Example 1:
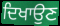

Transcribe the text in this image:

ਦਿਖਾਉਣ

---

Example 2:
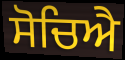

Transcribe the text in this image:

ਸੋਚਿਐ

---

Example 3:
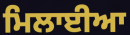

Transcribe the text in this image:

ਮਿਲਾਈਆ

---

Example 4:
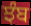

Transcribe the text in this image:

ਝੰਬ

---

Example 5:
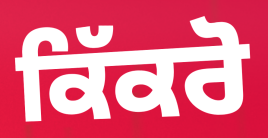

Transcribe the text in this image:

ਕਿੱਕਰੋ